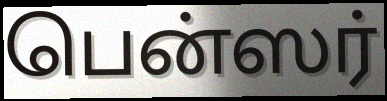
பென்ஸர்